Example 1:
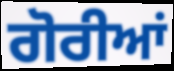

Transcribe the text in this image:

ਗੋਰੀਆਂ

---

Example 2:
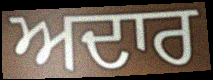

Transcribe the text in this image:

ਅਦਾਰ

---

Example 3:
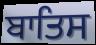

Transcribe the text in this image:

ਬਾਤਿਸ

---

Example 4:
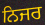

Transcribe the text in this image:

ਨਿਜਰ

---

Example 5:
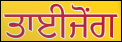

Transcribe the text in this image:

ਤਾਈਜੋਂਗ